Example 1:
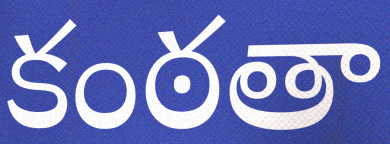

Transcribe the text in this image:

కంఠతా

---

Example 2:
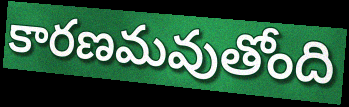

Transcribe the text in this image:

కారణమవుతోంది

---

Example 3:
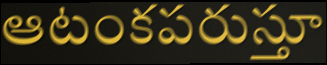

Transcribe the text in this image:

ఆటంకపరుస్తూ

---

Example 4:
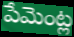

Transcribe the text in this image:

పేమెంట్ల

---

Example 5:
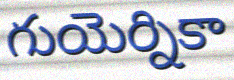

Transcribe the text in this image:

గుయెర్నికా